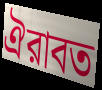
ঐরাবত